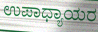
ಉಪಾಧ್ಯಾಯರ